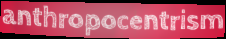
anthropocentrism